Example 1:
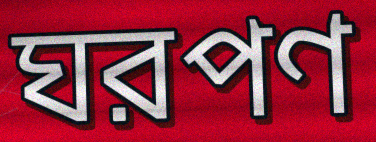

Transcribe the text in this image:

ঘরপণ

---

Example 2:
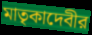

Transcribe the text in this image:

মাতৃকাদেবীর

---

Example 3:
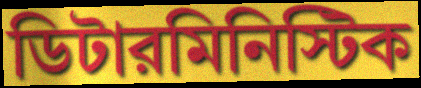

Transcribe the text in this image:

ডিটারমিনিস্টিক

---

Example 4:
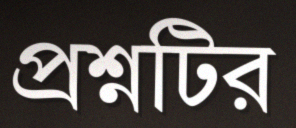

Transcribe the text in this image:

প্রশ্নটির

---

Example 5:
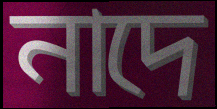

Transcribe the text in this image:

নাদে